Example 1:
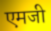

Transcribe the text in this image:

एमजी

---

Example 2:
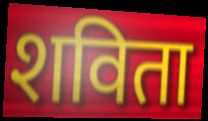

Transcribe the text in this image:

शविता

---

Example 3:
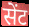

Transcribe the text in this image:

सेंट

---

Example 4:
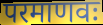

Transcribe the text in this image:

परमाणवः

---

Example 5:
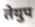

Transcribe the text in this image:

तेयुप